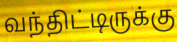
வந்திட்டிருக்கு